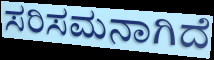
ಸರಿಸಮನಾಗಿದೆ